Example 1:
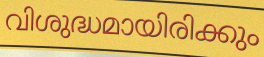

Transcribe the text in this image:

വിശുദ്ധമായിരിക്കും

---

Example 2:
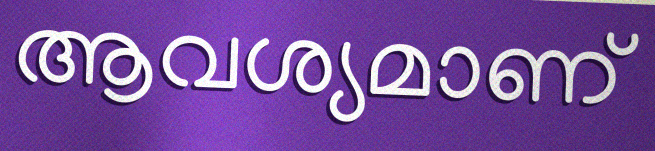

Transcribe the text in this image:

ആവശ്യമാണ്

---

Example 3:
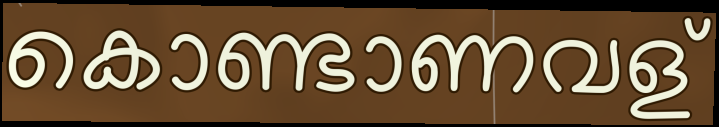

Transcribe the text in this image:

കൊണ്ടാണവള്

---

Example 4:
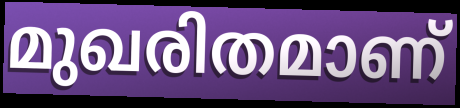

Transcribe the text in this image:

മുഖരിതമാണ്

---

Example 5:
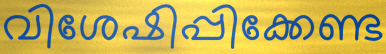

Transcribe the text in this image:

വിശേഷിപ്പിക്കേണ്ട